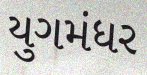
યુગમંધર